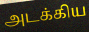
அடக்கிய